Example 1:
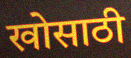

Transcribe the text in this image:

खोसाठी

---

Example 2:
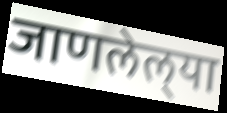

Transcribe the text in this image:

जाणलेल्या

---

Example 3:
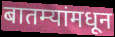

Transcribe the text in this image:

बातम्यांमधून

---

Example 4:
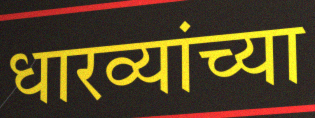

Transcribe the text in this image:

धारव्यांच्या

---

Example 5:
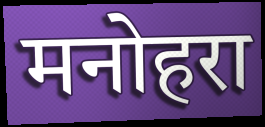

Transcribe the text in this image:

मनोहरा